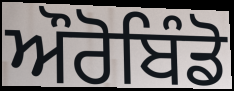
ਔਰੋਬਿੰਡੋ